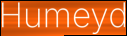
Humeyd